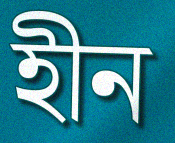
হীন